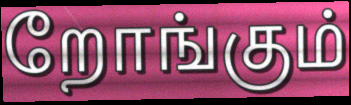
றோங்கும்